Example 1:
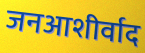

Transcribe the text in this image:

जनआशीर्वाद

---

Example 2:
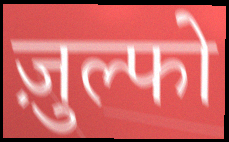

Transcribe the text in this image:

ज़ुल्फो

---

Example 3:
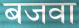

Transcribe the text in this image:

बजवा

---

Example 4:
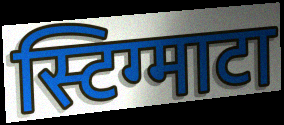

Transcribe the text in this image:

स्टिग्माटा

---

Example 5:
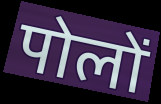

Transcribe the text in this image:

पोलों